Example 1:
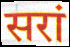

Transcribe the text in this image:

सरां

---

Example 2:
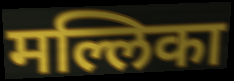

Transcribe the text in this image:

मल्लिका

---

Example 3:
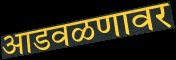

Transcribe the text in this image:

आडवळणावर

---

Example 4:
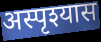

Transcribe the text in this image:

अस्पृश्यास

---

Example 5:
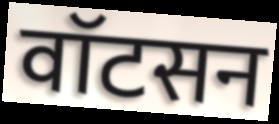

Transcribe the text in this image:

वॉटसन